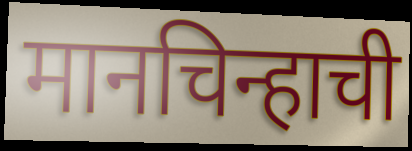
मानचिन्हाची